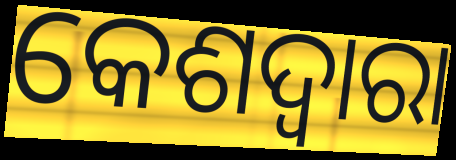
କେଶଦ୍ବାରା